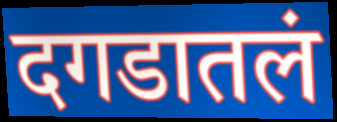
दगडातलं